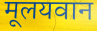
मूलयवान